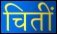
चितीं